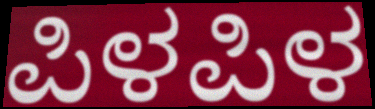
ಪಿಳಪಿಳ